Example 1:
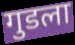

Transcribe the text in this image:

गुडला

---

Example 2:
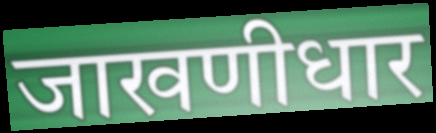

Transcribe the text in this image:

जाखणीधार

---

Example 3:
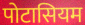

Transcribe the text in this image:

पोटासियम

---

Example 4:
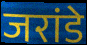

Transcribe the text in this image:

जरांडे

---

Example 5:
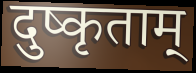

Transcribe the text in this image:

दुष्कृताम्